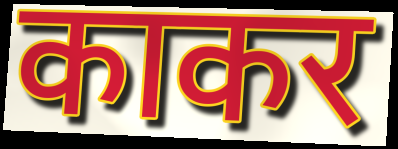
काकर